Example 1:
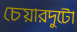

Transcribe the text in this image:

চেয়ারদুটো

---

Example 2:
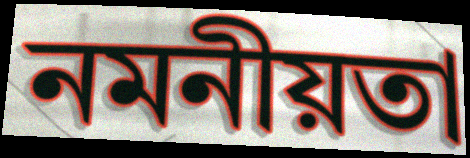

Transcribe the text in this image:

নমনীয়তা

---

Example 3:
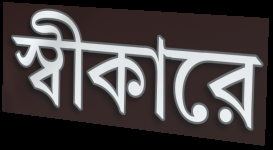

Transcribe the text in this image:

স্বীকারে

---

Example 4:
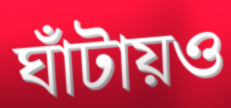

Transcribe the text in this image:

ঘাঁটায়ও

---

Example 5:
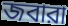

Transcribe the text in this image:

জবারা